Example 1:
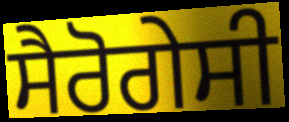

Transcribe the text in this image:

ਸੈਰੋਗੇਸੀ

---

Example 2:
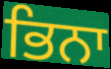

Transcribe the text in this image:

ਭਿਨਾ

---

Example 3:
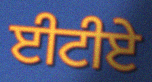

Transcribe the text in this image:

ਈਟੀਏ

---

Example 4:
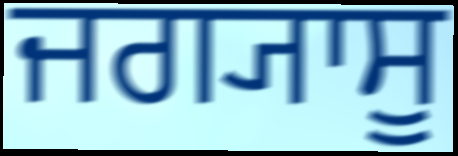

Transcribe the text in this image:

ਜਗ੍ਯਾਸੂ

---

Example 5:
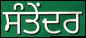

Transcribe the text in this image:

ਸੰਤੇਂਦਰ